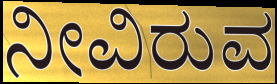
ನೀವಿರುವ